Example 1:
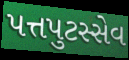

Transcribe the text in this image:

પત્તપુટસ્સેવ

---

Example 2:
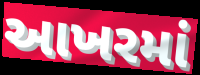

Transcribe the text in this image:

આખરમાં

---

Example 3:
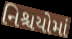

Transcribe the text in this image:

નિશ્ચયોમાં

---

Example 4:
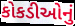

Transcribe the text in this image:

કોકડીઓનું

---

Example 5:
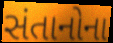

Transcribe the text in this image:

સંતાનોના